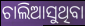
ଚାଲିଆସୁଥିବା